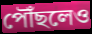
পৌঁছলেও